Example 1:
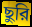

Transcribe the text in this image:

ছুরি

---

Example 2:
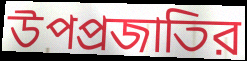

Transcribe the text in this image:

উপপ্রজাতির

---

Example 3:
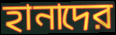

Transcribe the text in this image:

হানাদের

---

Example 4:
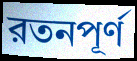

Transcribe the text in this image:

রতনপূর্ণ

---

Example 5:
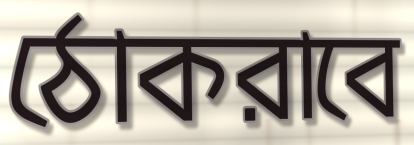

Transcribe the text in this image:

ঠোকরাবে